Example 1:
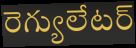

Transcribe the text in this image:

రెగ్యులేటర్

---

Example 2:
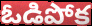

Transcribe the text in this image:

ఓడిపోక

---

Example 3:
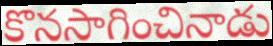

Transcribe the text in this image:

కొనసాగించినాడు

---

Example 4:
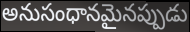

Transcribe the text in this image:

అనుసంధానమైనప్పుడు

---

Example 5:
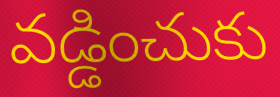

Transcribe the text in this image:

వడ్డించుకు